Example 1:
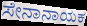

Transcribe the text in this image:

ಸೇನಾನಾಯಕ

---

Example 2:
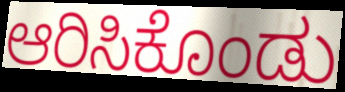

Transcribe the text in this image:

ಆರಿಸಿಕೊಂಡು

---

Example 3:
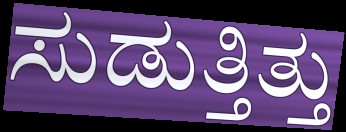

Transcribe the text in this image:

ಸುಡುತ್ತಿತ್ತು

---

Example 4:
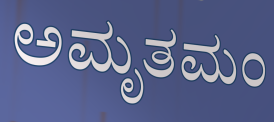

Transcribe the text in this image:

ಅಮೃತಮಂ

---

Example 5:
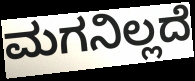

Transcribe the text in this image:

ಮಗನಿಲ್ಲದೆ